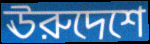
ঊরুদেশে